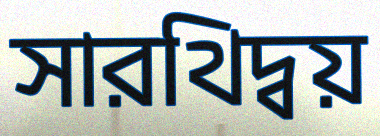
সারথিদ্বয়